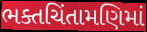
ભક્તચિંતામણિમાં